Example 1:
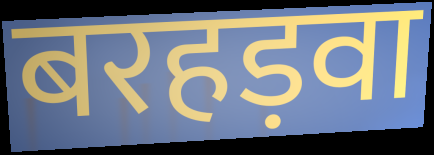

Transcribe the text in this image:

बरहड़वा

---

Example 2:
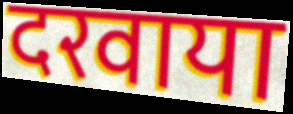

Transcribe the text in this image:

दरवाया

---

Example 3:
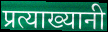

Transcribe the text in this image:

प्रत्याख्यानी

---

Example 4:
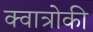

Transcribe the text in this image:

क्वात्रोकी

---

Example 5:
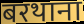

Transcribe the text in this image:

बरथाना